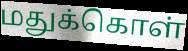
மதுக்கொள்